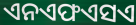
ଏନଏଫଏସଏ